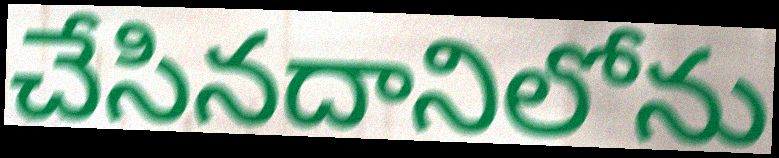
చేసినదానిలోను